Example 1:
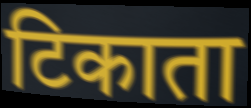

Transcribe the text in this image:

टिकाता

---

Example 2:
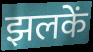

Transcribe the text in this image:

झलकें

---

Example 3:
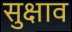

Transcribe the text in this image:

सुक्षाव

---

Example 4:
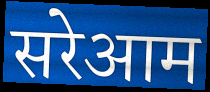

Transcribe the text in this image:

सरेआम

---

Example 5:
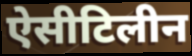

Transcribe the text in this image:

ऐसीटिलीन